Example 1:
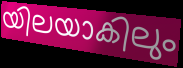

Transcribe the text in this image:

യിലയാകിലും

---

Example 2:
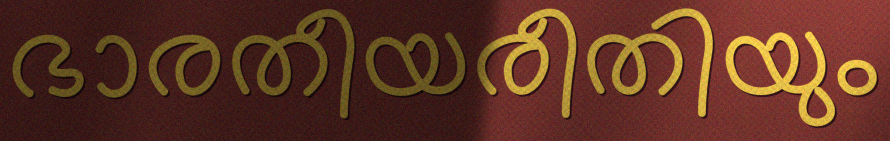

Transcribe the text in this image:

ഭാരതീയരീതിയും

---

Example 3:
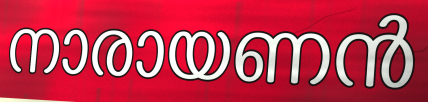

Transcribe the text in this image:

നാരായണൻ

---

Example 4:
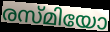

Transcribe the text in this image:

രസ്മിയോ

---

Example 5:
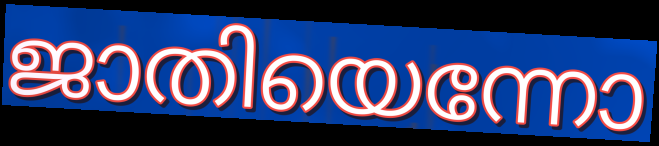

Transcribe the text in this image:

ജാതിയെന്നോ